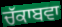
ਚੱਕਾਬਵਾ